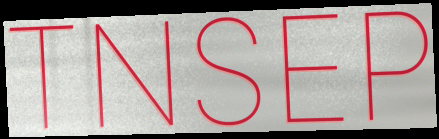
TNSEP